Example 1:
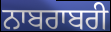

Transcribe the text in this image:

ਨਾਬਰਾਬਰੀ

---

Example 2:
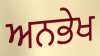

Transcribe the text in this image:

ਅਨਭੇਖ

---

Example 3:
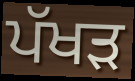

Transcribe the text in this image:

ਪੱਖੜ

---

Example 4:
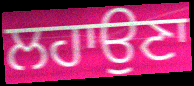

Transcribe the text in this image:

ਲਹਾਉਣਾ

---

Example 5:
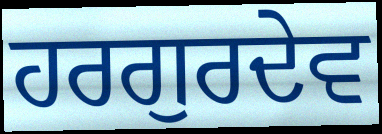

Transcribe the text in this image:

ਹਰਗੁਰਦੇਵ